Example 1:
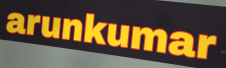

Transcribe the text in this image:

arunkumar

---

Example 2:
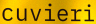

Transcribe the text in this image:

cuvieri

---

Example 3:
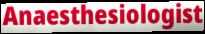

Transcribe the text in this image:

Anaesthesiologist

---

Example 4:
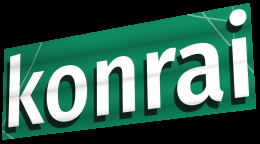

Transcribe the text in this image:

konrai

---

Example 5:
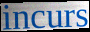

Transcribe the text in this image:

incurs